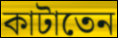
কাটাতেন